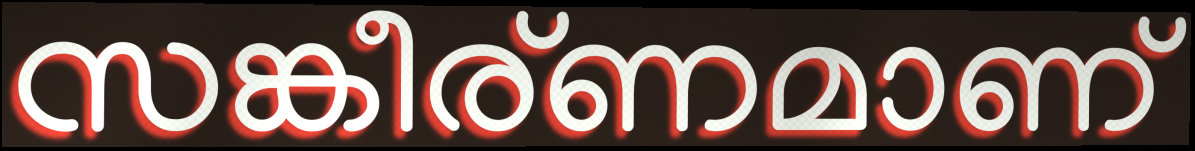
സങ്കീര്ണമാണ്